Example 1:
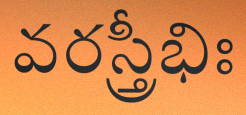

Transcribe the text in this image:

వరస్త్రీభిః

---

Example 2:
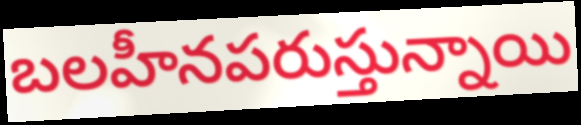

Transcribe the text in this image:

బలహీనపరుస్తున్నాయి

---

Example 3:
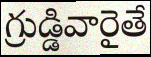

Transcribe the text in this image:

గ్రుడ్డివారైతే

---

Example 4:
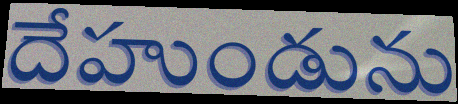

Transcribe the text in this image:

దేహుండును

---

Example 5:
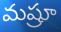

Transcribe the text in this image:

మష్రూ